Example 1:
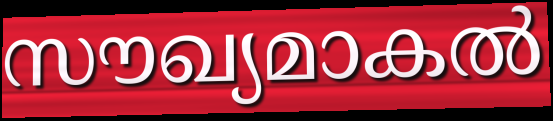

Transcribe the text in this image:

സൗഖ്യമാകൽ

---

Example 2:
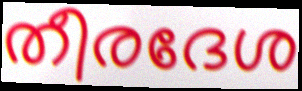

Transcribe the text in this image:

തീരദേശ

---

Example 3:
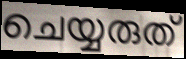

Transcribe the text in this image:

ചെയ്യരുത്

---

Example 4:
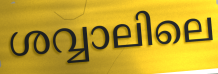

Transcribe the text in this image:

ശവ്വാലിലെ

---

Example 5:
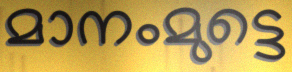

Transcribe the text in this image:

മാനംമുട്ടെ